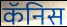
कॅनिस